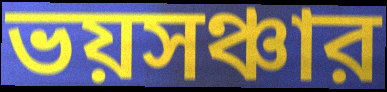
ভয়সঞ্চার